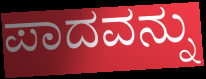
ಪಾದವನ್ನು